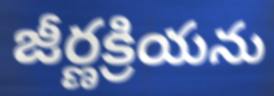
జీర్ణక్రియను